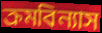
ক্ৰমবিন্যাস